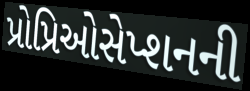
પ્રોપ્રિઓસેપ્શનની